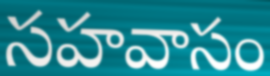
సహవాసం